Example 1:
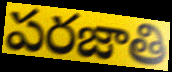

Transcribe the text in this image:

పరజాతి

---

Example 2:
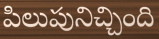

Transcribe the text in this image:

పిలుపునిచ్చింది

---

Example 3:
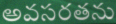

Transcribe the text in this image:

అవసరతను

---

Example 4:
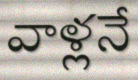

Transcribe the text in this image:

వాళ్లనే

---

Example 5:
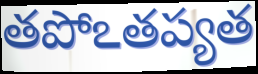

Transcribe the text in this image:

తపోఽతప్యత